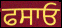
ਫਸਾਓ